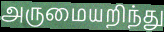
அருமையறிந்து